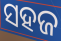
ସହଜ